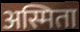
अस्मिता